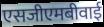
एसजीएमबीवाई